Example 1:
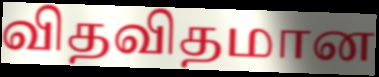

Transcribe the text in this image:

விதவிதமான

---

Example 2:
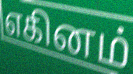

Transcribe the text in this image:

எகினம்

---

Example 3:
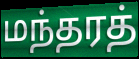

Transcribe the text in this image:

மந்தரத்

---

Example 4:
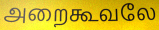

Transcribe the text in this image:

அறைகூவலே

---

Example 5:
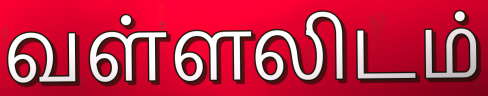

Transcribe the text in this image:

வள்ளலிடம்